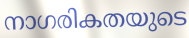
നാഗരികതയുടെ